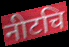
नीटचि